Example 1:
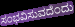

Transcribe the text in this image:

ಸಂಭವಿಸುವದೆಂದು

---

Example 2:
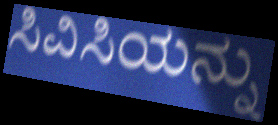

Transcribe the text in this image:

ಸಿವಿಸಿಯನ್ನು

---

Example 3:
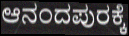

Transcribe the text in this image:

ಆನಂದಪುರಕ್ಕೆ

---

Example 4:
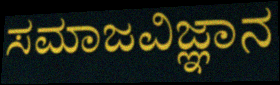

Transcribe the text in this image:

ಸಮಾಜವಿಜ್ಞಾನ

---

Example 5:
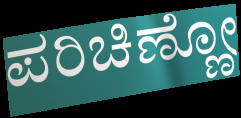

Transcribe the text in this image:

ಪರಿಚಿಣ್ಣೋ